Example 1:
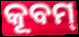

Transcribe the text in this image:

କୂବମ୍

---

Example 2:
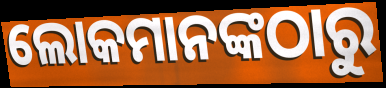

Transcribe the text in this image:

ଲୋକମାନଙ୍କଠାରୁ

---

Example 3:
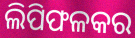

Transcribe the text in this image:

ଲିପିଫଳକର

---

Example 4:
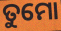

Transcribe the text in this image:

ତୁମୋ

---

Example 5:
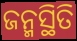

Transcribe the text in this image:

ଜନ୍ମସ୍ଥିତି